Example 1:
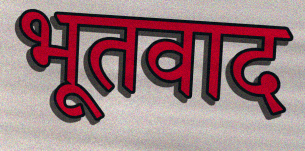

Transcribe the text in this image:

भूतवाद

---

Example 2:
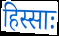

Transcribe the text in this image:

हिस्साः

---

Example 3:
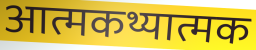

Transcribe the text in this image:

आत्मकथ्यात्मक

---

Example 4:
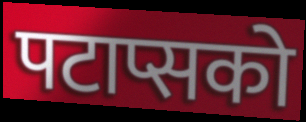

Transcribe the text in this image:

पटाप्सको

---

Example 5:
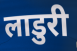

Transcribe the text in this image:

लाडुरी